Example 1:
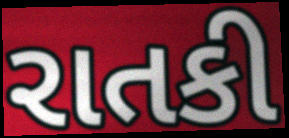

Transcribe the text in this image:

રાતકી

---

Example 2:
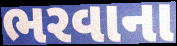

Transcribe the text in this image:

ભરવાના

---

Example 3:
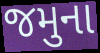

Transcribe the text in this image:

જમુના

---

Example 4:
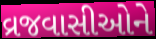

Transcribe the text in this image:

વ્રજવાસીઓને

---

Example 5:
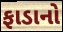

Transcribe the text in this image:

ફાડાનો